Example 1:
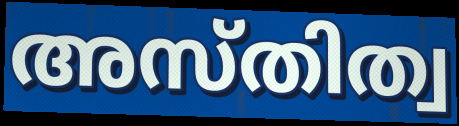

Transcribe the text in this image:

അസ്തിത്വ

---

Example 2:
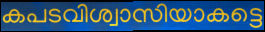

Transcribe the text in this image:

കപടവിശ്വാസിയാകട്ടെ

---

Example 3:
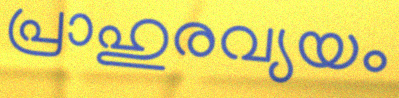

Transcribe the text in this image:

പ്രാഹുരവ്യയം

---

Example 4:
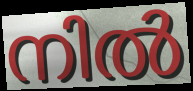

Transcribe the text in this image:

നിൽ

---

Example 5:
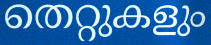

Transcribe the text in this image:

തെറ്റുകളും